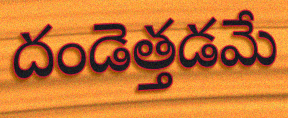
దండెత్తడమే